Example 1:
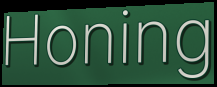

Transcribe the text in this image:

Honing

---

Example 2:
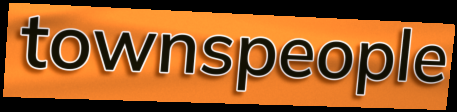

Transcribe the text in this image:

townspeople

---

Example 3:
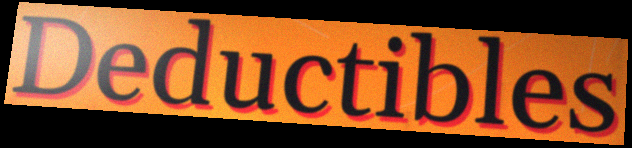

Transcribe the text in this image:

Deductibles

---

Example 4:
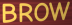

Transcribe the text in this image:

BROW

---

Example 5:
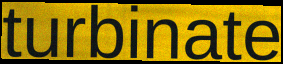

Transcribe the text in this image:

turbinate